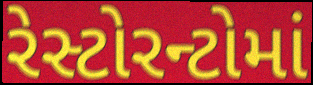
રેસ્ટોરન્ટોમાં